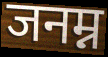
जनम्न